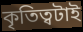
কৃতিত্বটাই